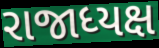
રાજાધ્યક્ષ